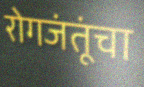
रोगजंतूंचा